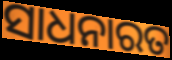
ସାଧନାରତ